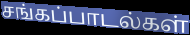
சங்கப்பாடல்கள்